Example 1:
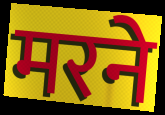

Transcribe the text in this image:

मरने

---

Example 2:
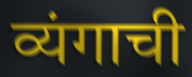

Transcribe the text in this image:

व्यंगाची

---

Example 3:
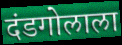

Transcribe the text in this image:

दंडगोलाला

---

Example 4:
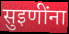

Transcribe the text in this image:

सुइणींना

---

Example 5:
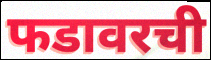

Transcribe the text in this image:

फडावरची